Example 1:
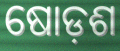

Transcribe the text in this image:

ଷୋଡ଼ଶ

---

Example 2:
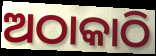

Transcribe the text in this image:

ଅଠାକାଠି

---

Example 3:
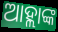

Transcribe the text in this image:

ଆହ୍ଲାଙ୍କ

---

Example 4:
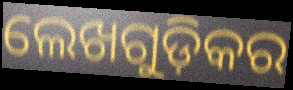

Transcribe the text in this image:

ଲେଖଗୁଡ଼ିକର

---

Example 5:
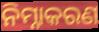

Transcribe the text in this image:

ନିମ୍ନାକରଣ